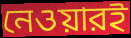
নেওয়ারই